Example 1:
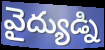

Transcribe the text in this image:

వైద్యుడ్ని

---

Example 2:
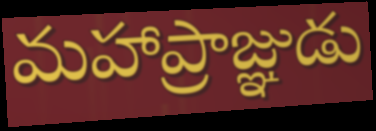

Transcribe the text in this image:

మహాప్రాజ్ఞుడు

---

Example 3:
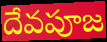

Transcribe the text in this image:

దేవపూజ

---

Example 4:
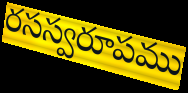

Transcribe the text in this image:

రసస్వరూపము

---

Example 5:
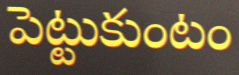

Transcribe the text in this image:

పెట్టుకుంటం